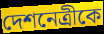
দেশনেত্রীকে